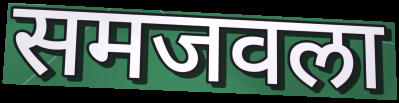
समजवला